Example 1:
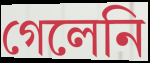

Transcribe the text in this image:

গেলেনি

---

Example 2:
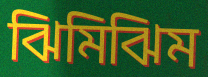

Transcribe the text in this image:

ঝিমিঝিম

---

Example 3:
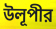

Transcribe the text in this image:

উলূপীর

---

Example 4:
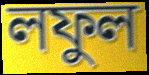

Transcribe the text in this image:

লফুল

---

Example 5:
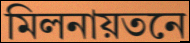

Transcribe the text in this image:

মিলনায়তনে